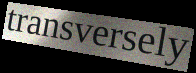
transversely